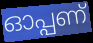
ഓപ്പണ്